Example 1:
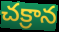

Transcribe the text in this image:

చక్రాన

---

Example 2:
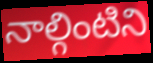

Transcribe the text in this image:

నాల్గింటిని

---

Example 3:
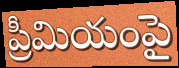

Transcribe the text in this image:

ప్రీమియంపై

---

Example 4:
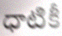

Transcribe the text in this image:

ధాటికీ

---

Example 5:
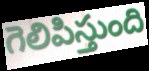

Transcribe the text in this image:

గెలిపిస్తుంది